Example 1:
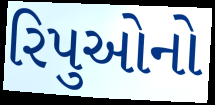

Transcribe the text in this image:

રિપુઓનો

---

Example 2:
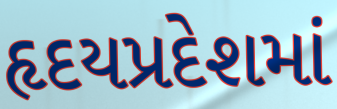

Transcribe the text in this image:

હૃદયપ્રદેશમાં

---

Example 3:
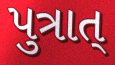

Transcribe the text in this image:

પુત્રાત્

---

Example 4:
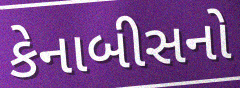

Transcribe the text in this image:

કેનાબીસનો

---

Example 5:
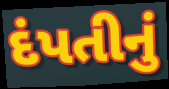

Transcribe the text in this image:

દંપતીનું